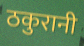
ठकुरानी